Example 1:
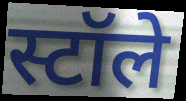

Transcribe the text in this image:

स्टॉले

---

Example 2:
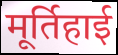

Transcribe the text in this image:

मूर्तिहाई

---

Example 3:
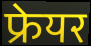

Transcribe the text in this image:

फ्रेयर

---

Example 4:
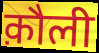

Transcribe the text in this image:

क़ौली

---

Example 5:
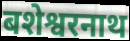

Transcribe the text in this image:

बशेश्वरनाथ